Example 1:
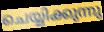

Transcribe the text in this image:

ചെയ്യിക്കുന്നു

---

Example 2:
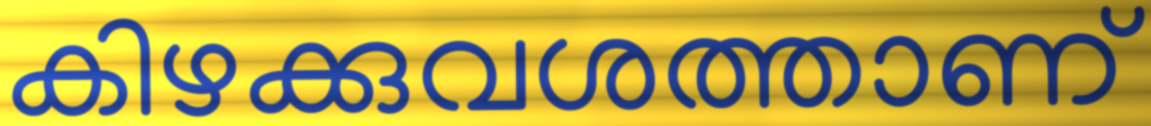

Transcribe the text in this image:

കിഴക്കുവശത്താണ്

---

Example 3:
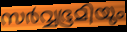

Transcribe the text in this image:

സർവ്വഭൂമിയും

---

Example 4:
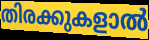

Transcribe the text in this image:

തിരക്കുകളാൽ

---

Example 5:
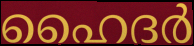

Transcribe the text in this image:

ഹൈദർ